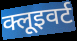
क्लूइवर्ट